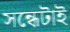
সন্ধেটাই